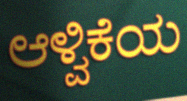
ಆಳ್ವಿಕೆಯ